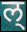
ल्